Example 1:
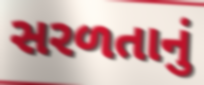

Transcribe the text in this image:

સરળતાનું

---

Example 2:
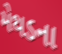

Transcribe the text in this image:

મેથડના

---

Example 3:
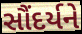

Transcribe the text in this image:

સૌંદર્યને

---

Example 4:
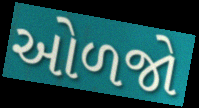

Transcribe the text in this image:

ઓળજો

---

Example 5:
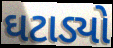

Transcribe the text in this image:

ઘટાડ્યો